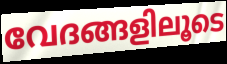
വേദങ്ങളിലൂടെ